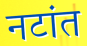
नटांत